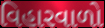
વિહારવાળો